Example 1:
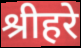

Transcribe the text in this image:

श्रीहरे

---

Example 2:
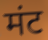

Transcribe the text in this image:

मंट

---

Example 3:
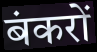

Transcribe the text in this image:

बंकरों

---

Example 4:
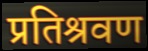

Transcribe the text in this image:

प्रतिश्रवण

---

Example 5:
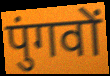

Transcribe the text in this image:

पुंगवों